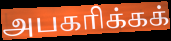
அபகரிக்கக்